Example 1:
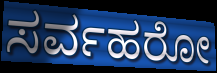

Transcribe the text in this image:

ಸರ್ವಹರೋ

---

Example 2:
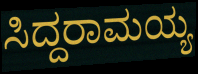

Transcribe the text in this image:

ಸಿದ್ದರಾಮಯ್ಯ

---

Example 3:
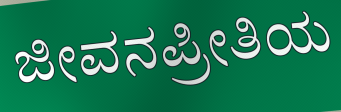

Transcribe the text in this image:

ಜೀವನಪ್ರೀತಿಯ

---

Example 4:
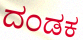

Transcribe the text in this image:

ದಂಡಕ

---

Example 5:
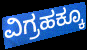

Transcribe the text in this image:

ವಿಗ್ರಹಕ್ಕೂ